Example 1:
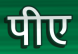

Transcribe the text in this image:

पीए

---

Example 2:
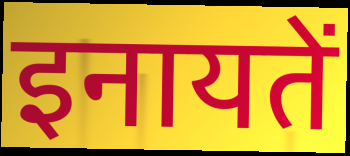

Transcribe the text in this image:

इनायतें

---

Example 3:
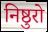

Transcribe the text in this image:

निष्ठुरो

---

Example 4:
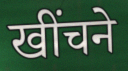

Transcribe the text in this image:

खींचने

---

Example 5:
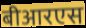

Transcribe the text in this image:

बीआरएस